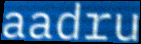
aadru